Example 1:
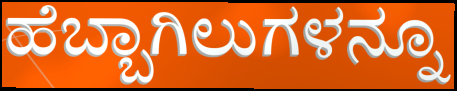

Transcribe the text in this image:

ಹೆಬ್ಬಾಗಿಲುಗಳನ್ನೂ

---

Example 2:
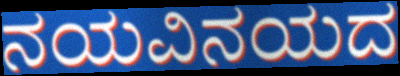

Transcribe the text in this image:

ನಯವಿನಯದ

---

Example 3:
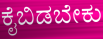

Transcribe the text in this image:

ಕೈಬಿಡಬೇಕು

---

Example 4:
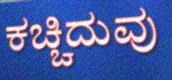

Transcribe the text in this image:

ಕಚ್ಚಿದುವು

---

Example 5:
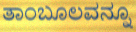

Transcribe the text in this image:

ತಾಂಬೂಲವನ್ನೂ